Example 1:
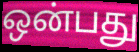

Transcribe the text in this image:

ஒன்பது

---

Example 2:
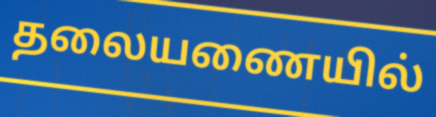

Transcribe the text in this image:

தலையணையில்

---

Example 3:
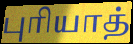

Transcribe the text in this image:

புரியாத்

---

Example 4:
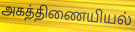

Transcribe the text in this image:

அகத்திணையியல்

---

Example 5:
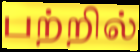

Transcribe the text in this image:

பற்றில்